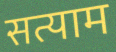
सत्याम